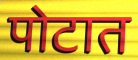
पोटात